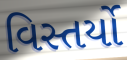
વિસ્તર્યો